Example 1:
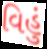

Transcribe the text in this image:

વિહું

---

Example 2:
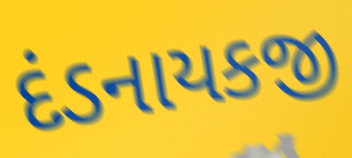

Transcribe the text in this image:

દંડનાયકજી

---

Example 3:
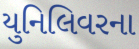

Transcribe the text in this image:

યુનિલિવરના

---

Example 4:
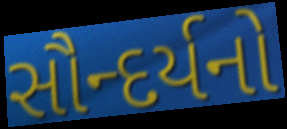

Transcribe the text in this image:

સૌન્દર્યનો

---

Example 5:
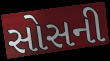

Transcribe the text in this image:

સોસની